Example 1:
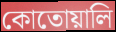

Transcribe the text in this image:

কোতোয়ালি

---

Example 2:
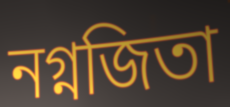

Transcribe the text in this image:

নগ্নজিতা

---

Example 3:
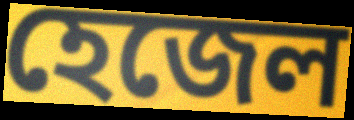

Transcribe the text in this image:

হেজেল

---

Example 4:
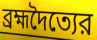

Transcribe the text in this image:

ব্রহ্মদৈত্যের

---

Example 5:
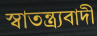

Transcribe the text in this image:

স্বাতন্ত্র্যবাদী